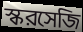
স্করসেজি